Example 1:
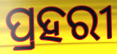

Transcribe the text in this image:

ପ୍ରହରୀ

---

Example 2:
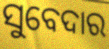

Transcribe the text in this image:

ସୁବେଦାର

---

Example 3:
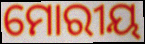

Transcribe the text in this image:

ମୋରୀୟ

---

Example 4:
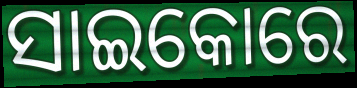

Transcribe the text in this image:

ସାଇକୋରେ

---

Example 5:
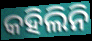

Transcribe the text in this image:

କହିଲିନି